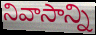
నివాసాన్ని